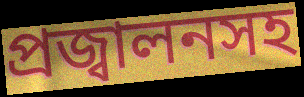
প্রজ্বালনসহ